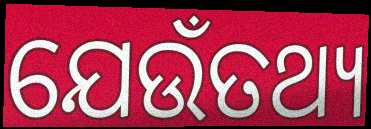
ଯେଉଁତଥ୍ୟ